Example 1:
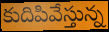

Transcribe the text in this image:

కుదిపివేస్తున్న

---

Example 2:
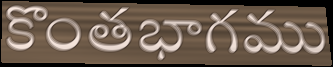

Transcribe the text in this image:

కొంతభాగము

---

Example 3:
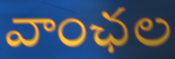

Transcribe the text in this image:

వాంఛల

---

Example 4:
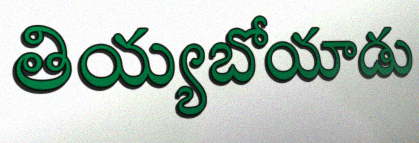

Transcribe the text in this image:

తియ్యబోయాడు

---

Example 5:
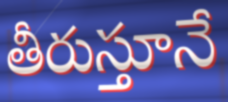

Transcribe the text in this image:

తీరుస్తూనే